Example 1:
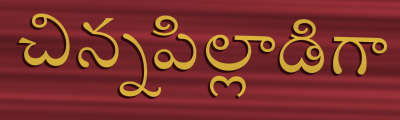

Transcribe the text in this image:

చిన్నపిల్లాడిగా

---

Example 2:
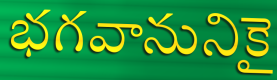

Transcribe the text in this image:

భగవానునికై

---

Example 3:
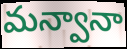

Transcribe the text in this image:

మన్వానా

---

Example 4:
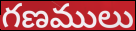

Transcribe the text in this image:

గణములు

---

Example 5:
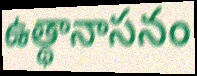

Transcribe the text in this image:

ఉత్థానాసనం